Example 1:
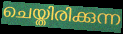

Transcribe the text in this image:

ചെയ്തിരിക്കുന്ന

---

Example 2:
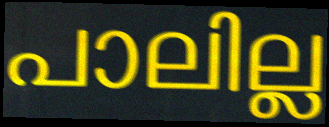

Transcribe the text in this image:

പാലില്ല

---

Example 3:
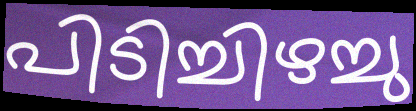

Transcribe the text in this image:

പിടിച്ചിഴച്ചു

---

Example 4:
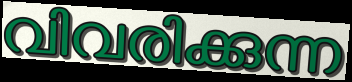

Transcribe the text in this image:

വിവരിക്കുന്ന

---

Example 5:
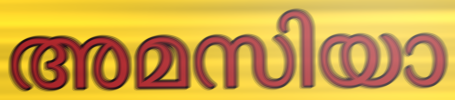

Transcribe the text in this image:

അമസിയാ